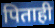
पिताही